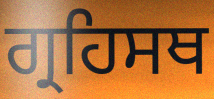
ਗ੍ਰਹਿਸਥ